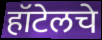
हॉटेलचे